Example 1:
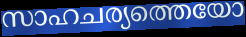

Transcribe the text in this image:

സാഹചര്യത്തെയോ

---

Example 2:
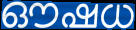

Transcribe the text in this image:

ഔഷധ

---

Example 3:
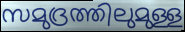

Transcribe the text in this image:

സമുദ്രത്തിലുമുള്ള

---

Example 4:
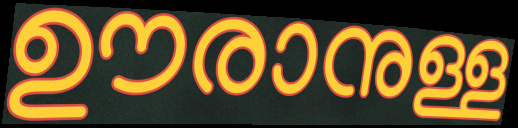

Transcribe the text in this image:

ഊരാനുള്ള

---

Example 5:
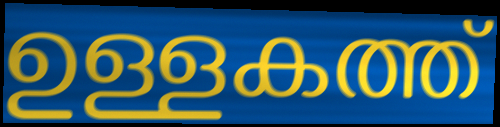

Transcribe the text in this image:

ഉള്ളകത്ത്